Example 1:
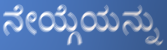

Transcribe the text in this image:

ನೇಯ್ಗೆಯನ್ನು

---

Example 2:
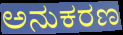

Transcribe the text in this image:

ಅನುಕರಣ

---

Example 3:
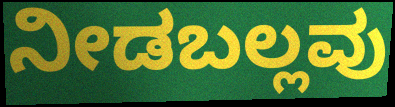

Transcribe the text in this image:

ನೀಡಬಲ್ಲವು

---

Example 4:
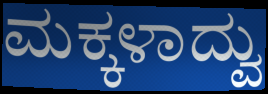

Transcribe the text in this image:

ಮಕ್ಕಳಾದ್ವು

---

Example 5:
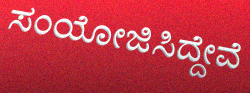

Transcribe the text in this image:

ಸಂಯೋಜಿಸಿದ್ದೇವೆ